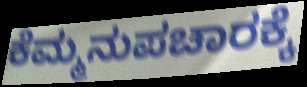
ಕೆಮ್ಮನುಪಚಾರಕ್ಕೆ